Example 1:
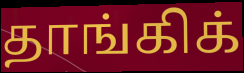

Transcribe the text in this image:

தாங்கிக்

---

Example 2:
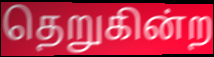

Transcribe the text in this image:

தெறுகின்ற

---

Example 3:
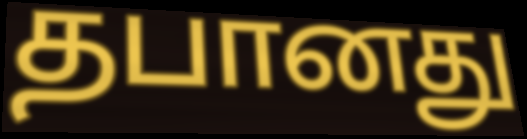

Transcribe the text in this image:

தபானது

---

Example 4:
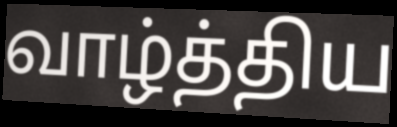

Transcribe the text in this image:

வாழ்த்திய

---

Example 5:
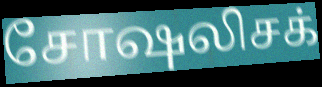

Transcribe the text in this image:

சோஷலிசக்